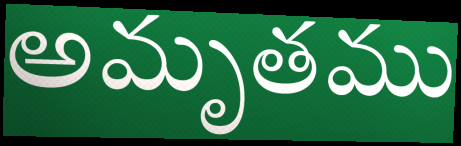
అమృతము